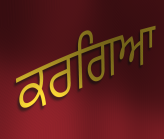
ਕਰਗਿਆ